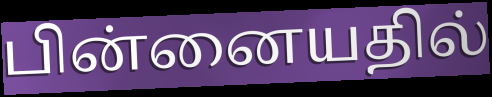
பின்னையதில்